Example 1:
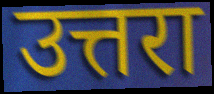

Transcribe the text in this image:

उत्तरा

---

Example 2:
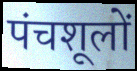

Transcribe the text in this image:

पंचशूलों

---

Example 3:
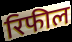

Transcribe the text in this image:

रिफील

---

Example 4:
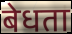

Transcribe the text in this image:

बेधता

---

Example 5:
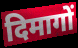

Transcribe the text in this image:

दिमागों